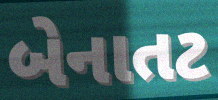
બેનાતટ